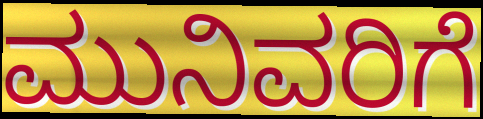
ಮುನಿವರಿಗೆ